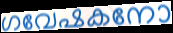
ഗവേഷകനോ